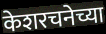
केशरचनेच्या